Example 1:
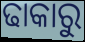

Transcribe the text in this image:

ଢାକାରୁ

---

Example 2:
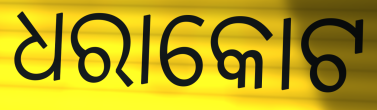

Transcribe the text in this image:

ଧରାକୋଟ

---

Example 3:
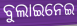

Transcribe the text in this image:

ବୁଲାଇନେଇ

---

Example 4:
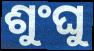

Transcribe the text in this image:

ଶୁଂଘୁ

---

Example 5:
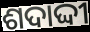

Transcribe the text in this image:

ଶଦାଦ୍ଦୀ